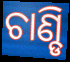
ଚାଣ୍ଡି